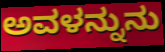
ಅವಳನ್ನುನು